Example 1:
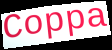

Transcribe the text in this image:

Coppa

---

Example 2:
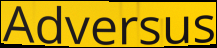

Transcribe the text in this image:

Adversus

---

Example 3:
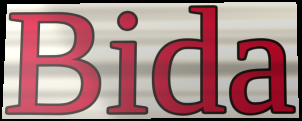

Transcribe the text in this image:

Bida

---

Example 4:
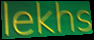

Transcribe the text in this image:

lekhs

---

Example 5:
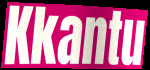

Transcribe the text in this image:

Kkantu